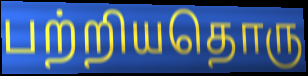
பற்றியதொரு